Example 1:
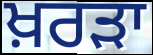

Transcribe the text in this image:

ਖ਼ਰੜਾ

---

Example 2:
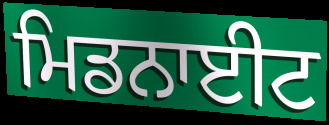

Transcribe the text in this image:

ਮਿਡਨਾਈਟ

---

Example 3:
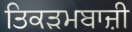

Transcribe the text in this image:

ਤਿਕੜਮਬਾਜ਼ੀ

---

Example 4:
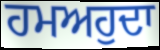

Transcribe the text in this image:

ਹਮਅਹੁਦਾ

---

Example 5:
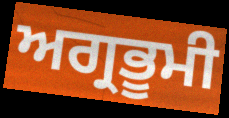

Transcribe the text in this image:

ਅਗ੍ਰਭੂਮੀ